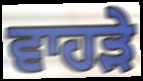
ਵਾਹੜੇ